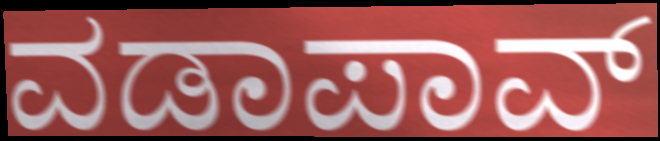
ವಡಾಪಾವ್